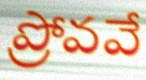
ప్రోవవే